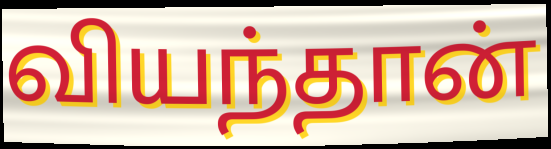
வியந்தான்